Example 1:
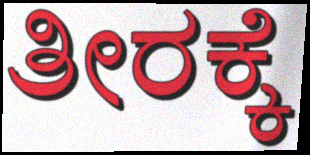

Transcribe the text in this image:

ತೀರಕ್ಕೆ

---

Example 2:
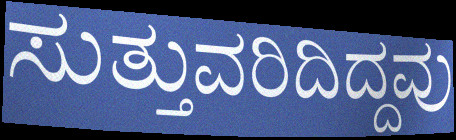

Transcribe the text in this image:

ಸುತ್ತುವರಿದಿದ್ದವು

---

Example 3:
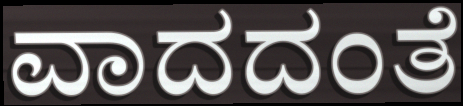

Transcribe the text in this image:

ವಾದದಂತೆ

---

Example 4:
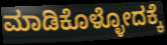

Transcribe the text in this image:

ಮಾಡಿಕೊಳ್ಳೋದಕ್ಕೆ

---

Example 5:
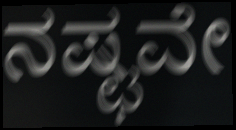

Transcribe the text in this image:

ನಷ್ಟವೇ